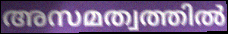
അസമത്വത്തിൽ